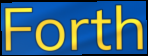
Forth